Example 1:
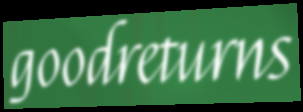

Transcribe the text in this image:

goodreturns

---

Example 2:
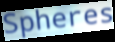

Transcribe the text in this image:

Spheres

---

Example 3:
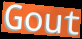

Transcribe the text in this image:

Gout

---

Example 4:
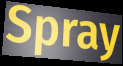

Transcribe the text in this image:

Spray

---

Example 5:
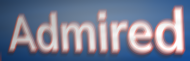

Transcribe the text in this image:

Admired